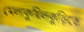
মেলাকুয়িলকুড়িতে